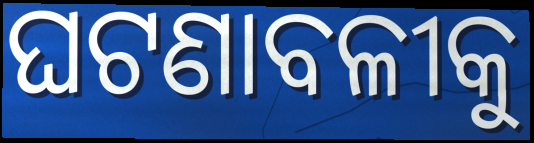
ଘଟଣାବଳୀକୁ